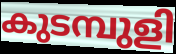
കുടമ്പുളി